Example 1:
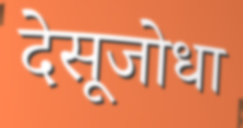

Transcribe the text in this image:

देसूजोधा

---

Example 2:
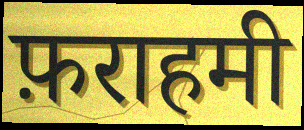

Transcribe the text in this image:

फ़राहमी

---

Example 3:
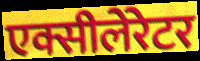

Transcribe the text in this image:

एक्सीलेरेटर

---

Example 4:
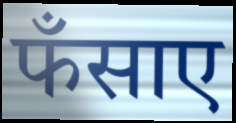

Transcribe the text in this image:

फँसाए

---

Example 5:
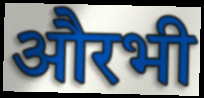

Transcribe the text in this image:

औरभी